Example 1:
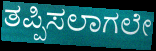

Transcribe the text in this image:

ತಪ್ಪಿಸಲಾಗಲೇ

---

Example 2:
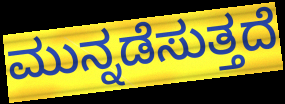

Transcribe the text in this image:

ಮುನ್ನಡೆಸುತ್ತದೆ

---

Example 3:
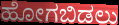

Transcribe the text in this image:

ಹೋಗಬಿಡಲು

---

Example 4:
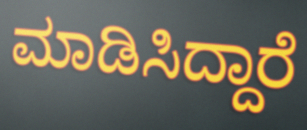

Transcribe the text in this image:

ಮಾಡಿಸಿದ್ದಾರೆ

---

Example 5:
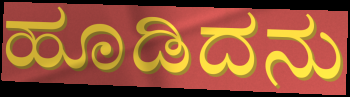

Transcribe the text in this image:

ಹೂಡಿದನು